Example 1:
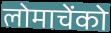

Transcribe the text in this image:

लोमाचेंको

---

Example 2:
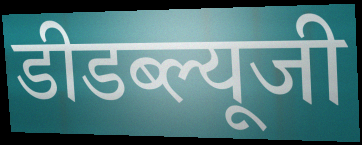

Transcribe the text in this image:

डीडब्ल्यूजी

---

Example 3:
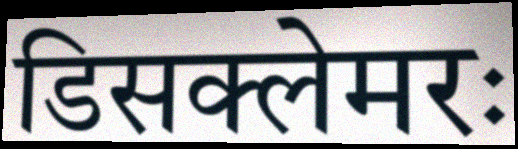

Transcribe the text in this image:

डिसक्लेमरः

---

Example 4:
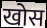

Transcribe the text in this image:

खोस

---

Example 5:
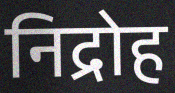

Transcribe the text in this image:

निद्रोह